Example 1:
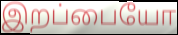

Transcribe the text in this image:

இறப்பையோ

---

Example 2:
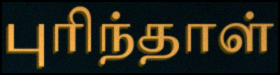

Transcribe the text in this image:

புரிந்தாள்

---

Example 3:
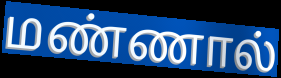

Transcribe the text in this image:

மண்ணால்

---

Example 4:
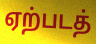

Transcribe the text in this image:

ஏற்படத்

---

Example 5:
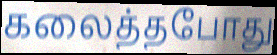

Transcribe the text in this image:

கலைத்தபோது